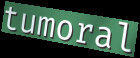
tumoral